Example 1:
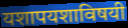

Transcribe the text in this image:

यशापयशाविषयी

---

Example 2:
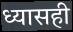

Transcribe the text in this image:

ध्यासही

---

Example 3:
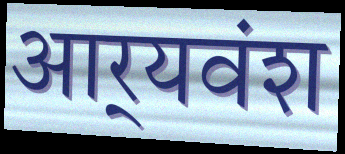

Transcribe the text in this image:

आर्यवंश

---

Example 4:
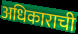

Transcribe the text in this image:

अधिकाराची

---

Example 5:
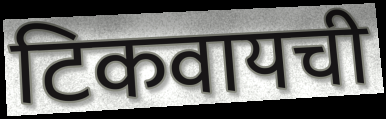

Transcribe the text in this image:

टिकवायची